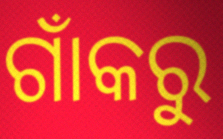
ଗାଁକରୁ